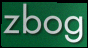
zbog